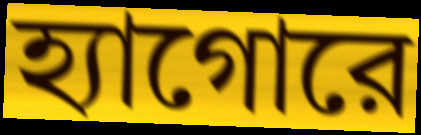
হ্যাগোরে